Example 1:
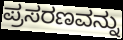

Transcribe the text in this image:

ಪ್ರಸರಣವನ್ನು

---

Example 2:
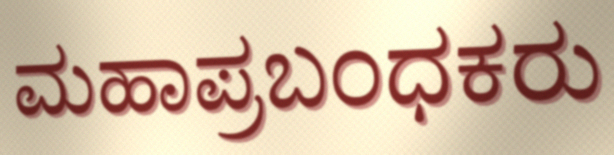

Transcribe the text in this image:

ಮಹಾಪ್ರಬಂಧಕರು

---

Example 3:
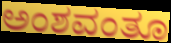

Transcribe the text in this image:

ಅಂಶವಂತೂ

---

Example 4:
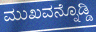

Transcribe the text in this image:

ಮುಖವನ್ನೊಡ್ಡಿ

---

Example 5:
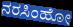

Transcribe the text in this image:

ನರಸಿಂಹೋ